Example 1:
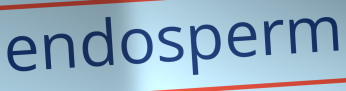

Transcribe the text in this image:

endosperm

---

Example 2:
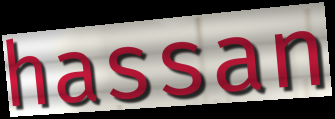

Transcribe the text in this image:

hassan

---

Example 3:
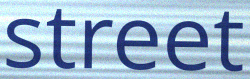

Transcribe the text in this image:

street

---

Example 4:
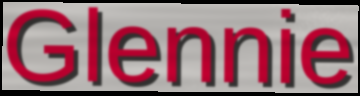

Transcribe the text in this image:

Glennie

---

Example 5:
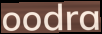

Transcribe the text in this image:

oodra